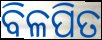
ବିଳପିତ